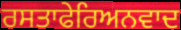
ਰਸਤਾਫੇਰਿਅਨਵਾਦ